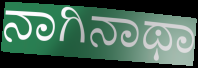
ನಾಗಿನಾಥಾ